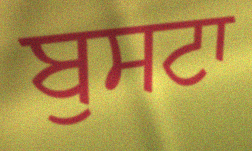
ਬੁਸਟਾ